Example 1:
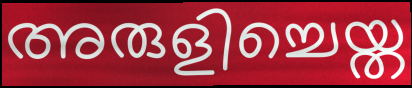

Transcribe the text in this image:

അരുളിച്ചെയ്ത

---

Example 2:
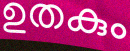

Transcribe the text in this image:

ഉതകും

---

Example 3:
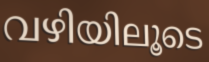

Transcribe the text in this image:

വഴിയിലൂടെ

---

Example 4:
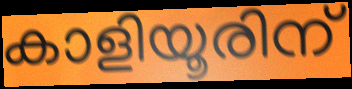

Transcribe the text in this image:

കാളിയൂരിന്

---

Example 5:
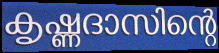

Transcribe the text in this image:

കൃഷ്ണദാസിന്റെ